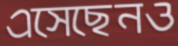
এসেছেনও